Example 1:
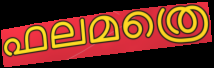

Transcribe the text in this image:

ഫലമത്രെ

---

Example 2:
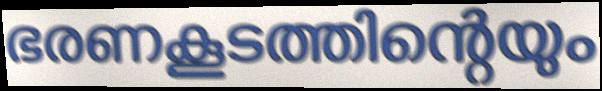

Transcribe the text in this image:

ഭരണകൂടത്തിന്റെയും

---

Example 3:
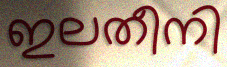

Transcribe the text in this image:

ഇലതീനി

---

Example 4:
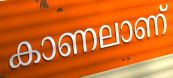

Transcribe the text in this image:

കാണലാണ്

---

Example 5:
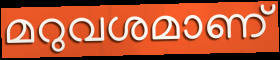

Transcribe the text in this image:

മറുവശമാണ്